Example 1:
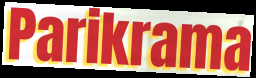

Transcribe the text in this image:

Parikrama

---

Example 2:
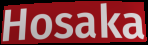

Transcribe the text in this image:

Hosaka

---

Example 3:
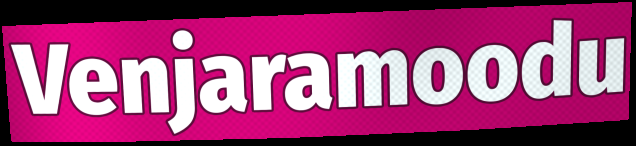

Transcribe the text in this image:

Venjaramoodu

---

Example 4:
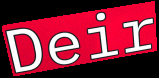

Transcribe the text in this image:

Deir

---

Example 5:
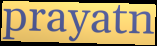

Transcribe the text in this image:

prayatn